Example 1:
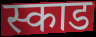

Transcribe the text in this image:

स्काड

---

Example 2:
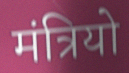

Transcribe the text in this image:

मंत्रियो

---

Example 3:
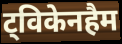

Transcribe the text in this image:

ट्विकेनहैम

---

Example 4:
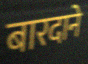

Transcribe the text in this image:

बारदाने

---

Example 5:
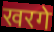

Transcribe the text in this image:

खरगे